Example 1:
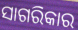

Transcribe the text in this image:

ସାଗରିକାର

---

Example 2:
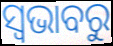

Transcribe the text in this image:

ସ୍ୱଭାବରୁ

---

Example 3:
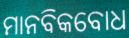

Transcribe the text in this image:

ମାନବିକବୋଧ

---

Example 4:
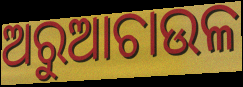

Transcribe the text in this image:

ଅରୁଆଚାଉଳ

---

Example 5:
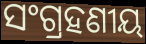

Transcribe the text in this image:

ସଂଗ୍ରହଣୀୟ